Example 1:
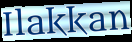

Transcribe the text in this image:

Ilakkan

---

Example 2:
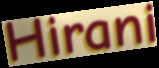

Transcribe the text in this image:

Hirani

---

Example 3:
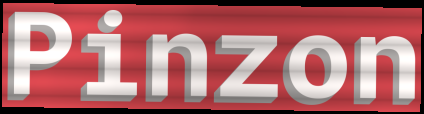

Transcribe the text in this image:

Pinzon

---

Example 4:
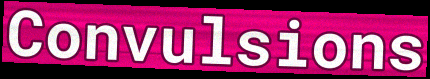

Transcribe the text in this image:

Convulsions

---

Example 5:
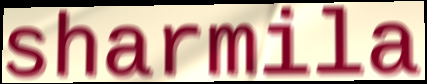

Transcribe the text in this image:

sharmila